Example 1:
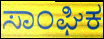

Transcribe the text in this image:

ಸಾಂಘಿಕ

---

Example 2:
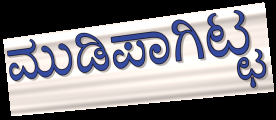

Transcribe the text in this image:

ಮುಡಿಪಾಗಿಟ್ಟ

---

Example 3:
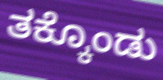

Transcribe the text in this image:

ತಕ್ಕೊಂಡು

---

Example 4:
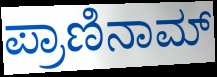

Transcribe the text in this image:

ಪ್ರಾಣಿನಾಮ್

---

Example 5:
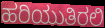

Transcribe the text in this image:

ಹರಿಯುತಿರಲಿ